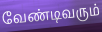
வேண்டிவரும்